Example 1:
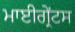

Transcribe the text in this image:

ਮਾਈਗ੍ਰੇਂਟਸ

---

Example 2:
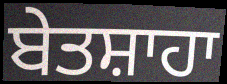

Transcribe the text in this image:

ਬੇਤਸ਼ਾਹਾ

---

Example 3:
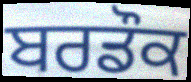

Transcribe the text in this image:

ਬਰਡੌਕ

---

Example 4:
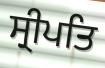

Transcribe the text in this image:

ਸ੍ਰੀਪਤਿ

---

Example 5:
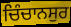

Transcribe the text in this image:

ਚਿੰਚਾਨਸੁਰ